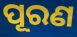
ପୂରଣ